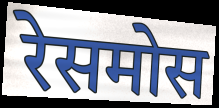
रेसमोस